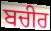
ਬਚੀਰ